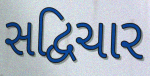
સદ્વિચાર